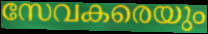
സേവകരെയും